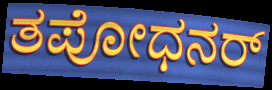
ತಪೋಧನರ್